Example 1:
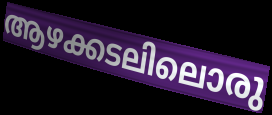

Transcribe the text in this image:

ആഴക്കടലിലൊരു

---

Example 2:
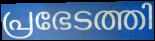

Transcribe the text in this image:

പ്രഭേടത്തി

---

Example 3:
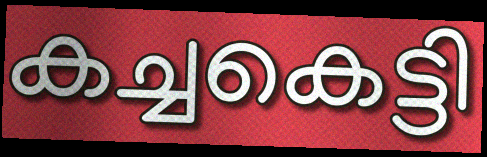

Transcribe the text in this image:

കച്ചകെട്ടി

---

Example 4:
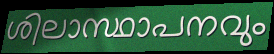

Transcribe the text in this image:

ശിലാസ്ഥാപനവും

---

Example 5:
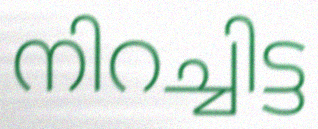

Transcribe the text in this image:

നിറച്ചിട്ട